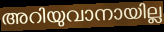
അറിയുവാനായില്ല